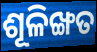
ଶୂଳିଙ୍ଖତ